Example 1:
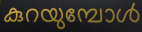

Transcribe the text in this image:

കുറയുമ്പോൾ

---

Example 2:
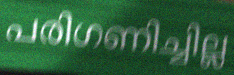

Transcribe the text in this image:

പരിഗണിച്ചില്ല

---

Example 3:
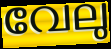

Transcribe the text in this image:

വേലു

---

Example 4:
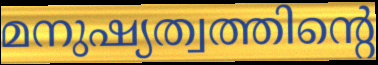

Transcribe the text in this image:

മനുഷ്യത്വത്തിന്റെ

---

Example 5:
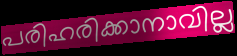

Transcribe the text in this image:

പരിഹരിക്കാനാവില്ല